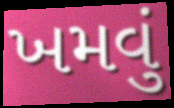
ખમવું